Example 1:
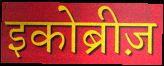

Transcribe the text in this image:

इकोब्रीज़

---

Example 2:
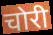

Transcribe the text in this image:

चोरी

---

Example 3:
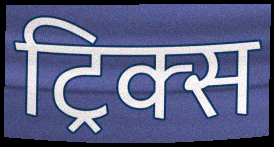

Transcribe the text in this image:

ट्रिक्‍स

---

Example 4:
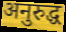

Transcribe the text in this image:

अनुरुद्ध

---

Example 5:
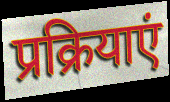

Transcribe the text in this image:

प्रक्रियाएं